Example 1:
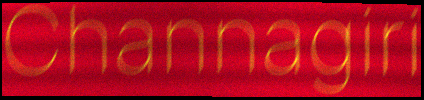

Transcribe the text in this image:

Channagiri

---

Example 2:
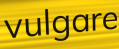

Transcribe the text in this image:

vulgare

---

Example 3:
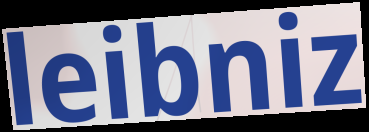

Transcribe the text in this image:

leibniz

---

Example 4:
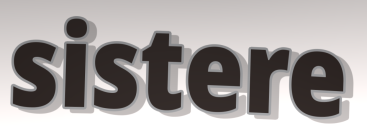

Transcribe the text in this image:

sistere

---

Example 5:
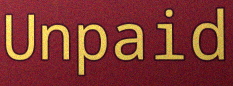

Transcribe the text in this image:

Unpaid